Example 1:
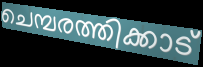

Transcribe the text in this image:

ചെമ്പരത്തിക്കാട്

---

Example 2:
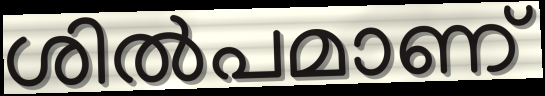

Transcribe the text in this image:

ശിൽപമാണ്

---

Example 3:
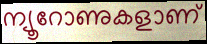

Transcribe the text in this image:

ന്യൂറോണുകളാണ്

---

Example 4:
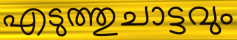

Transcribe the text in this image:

എടുത്തുചാട്ടവും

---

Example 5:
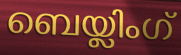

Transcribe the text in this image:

ബെയ്ലിംഗ്